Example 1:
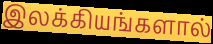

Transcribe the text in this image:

இலக்கியங்களால்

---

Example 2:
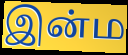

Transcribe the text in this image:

இன்ம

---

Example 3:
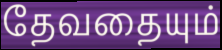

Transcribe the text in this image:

தேவதையும்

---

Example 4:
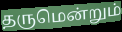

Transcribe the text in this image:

தருமென்றும்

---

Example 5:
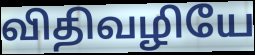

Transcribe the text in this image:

விதிவழியே